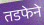
तडफेने